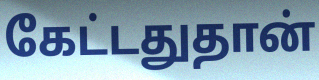
கேட்டதுதான்